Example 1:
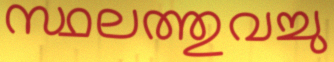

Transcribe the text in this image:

സ്ഥലത്തുവച്ചു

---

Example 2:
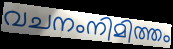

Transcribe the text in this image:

വചനംനിമിത്തം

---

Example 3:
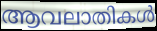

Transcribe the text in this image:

ആവലാതികൾ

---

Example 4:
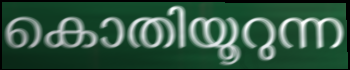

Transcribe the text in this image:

കൊതിയൂറുന്ന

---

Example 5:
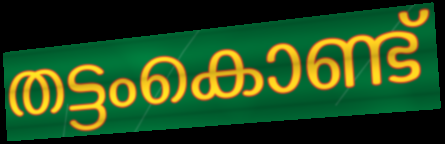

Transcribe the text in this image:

തട്ടംകൊണ്ട്